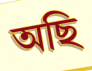
অছি